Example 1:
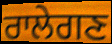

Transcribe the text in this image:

ਰਾਲੇਗਣ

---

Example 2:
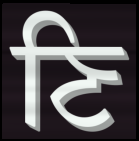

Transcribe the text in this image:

ਣਿ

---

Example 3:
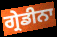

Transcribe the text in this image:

ਗ੍ਰੇਡੀਨਾ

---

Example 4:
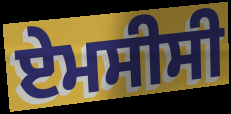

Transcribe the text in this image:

ਏਮਸੀਸੀ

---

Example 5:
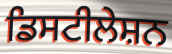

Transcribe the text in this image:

ਡਿਸਟੀਲੇਸ਼ਨ